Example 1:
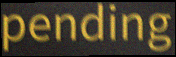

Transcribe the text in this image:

pending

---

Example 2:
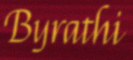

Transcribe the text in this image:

Byrathi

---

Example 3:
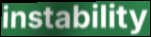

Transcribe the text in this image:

instability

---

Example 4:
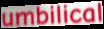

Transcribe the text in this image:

umbilical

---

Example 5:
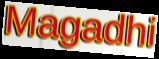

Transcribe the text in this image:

Magadhi